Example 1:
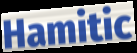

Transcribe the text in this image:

Hamitic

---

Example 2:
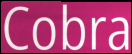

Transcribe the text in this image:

Cobra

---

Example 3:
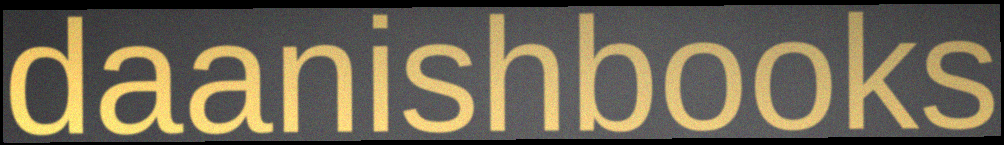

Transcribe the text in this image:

daanishbooks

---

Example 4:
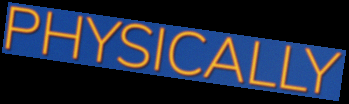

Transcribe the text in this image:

PHYSICALLY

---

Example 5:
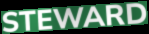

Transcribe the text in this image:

STEWARD